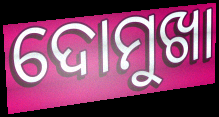
ଦୋମୁଖା